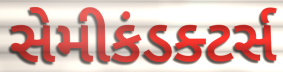
સેમીકંડક્ટર્સ